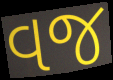
વજ